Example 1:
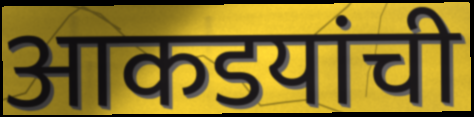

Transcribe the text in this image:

आकडयांची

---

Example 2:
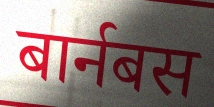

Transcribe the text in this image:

बार्नबस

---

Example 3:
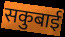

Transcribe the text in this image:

सकुबाई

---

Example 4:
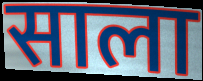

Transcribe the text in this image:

साला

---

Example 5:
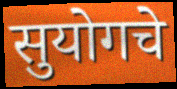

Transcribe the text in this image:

सुयोगचे